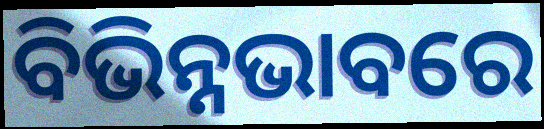
ବିଭିନ୍ନଭାବରେ